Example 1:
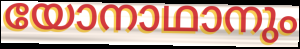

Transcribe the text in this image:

യോനാഥാനും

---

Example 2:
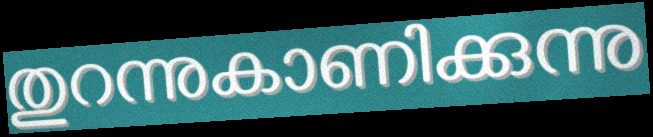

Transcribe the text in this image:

തുറന്നുകാണിക്കുന്നു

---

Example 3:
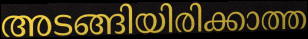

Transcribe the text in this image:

അടങ്ങിയിരിക്കാത്ത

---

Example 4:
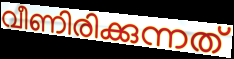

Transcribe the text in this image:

വീണിരിക്കുന്നത്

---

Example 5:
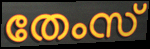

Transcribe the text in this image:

തേംസ്